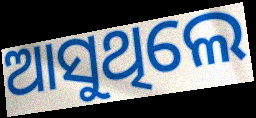
ଆସୁଥିଲେ